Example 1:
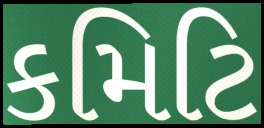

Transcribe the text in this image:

કમિટિ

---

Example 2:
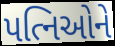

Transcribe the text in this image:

પત્નિઓને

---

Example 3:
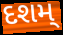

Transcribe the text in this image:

દશમ્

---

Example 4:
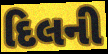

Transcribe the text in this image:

દિલની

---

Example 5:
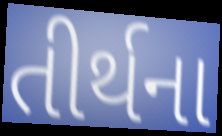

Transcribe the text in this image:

તીર્થના